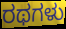
ರಥಗಳು